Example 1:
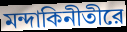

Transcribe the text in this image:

মন্দাকিনীতীরে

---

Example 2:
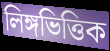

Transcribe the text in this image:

লিঙ্গভিত্তিক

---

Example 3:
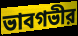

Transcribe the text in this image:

ভাবগভীর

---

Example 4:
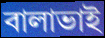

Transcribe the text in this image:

বালাভাই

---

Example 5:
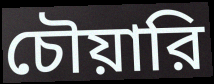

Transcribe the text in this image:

চৌয়ারি